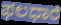
ಫಲಧಾರೆ